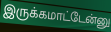
இருக்கமாட்டேன்னு